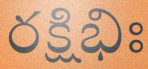
రక్షిభిః